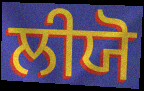
ਲੀਯੋ